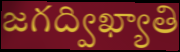
జగద్విఖ్యాతి